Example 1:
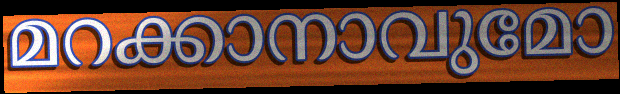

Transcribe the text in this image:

മറക്കാനാവുമോ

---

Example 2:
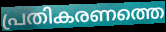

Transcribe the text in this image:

പ്രതികരണത്തെ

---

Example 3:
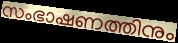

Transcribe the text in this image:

സംഭാഷണത്തിനും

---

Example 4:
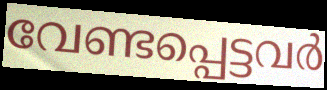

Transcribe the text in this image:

വേണ്ടപ്പെട്ടവർ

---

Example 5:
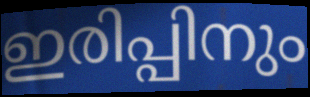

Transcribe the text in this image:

ഇരിപ്പിനും